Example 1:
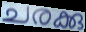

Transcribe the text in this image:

ചരക്കു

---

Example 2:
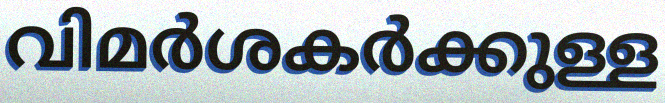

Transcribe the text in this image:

വിമർശകർക്കുള്ള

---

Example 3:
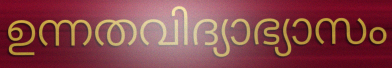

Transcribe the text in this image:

ഉന്നതവിദ്യാഭ്യാസം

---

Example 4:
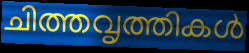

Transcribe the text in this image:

ചിത്തവൃത്തികൾ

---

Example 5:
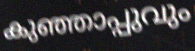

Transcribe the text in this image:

കുഞ്ഞാപ്പുവും